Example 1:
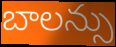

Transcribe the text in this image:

బాలన్సు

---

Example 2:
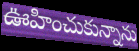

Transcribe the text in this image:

ఊహించుకున్నాను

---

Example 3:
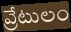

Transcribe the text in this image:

వ్రేటులం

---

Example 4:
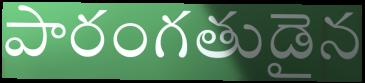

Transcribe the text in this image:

పారంగతుడైన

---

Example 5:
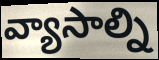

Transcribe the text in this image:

వ్యాసాల్ని